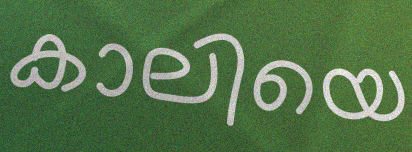
കാലിയെ